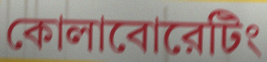
কোলাবোরেটিং